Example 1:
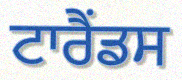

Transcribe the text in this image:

ਟਾਰੈਂਡਸ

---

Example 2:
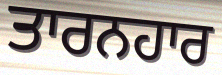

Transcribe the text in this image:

ਤਾਰਨਹਾਰ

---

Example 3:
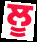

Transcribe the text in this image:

ਲੂ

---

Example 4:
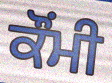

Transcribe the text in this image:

ਕੌਂਮੀ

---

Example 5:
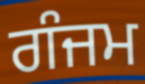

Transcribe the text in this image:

ਗੰਜਮ